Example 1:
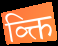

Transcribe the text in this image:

व्क्ति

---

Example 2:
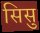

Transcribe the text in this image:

सिसु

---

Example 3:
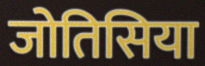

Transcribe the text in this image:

जोतिसिया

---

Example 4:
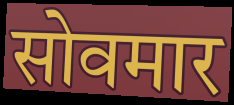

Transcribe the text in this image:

सोवमार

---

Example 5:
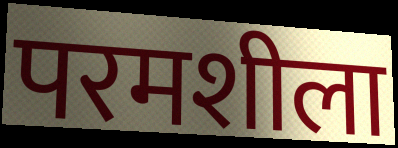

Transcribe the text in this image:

परमशीला